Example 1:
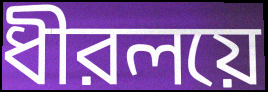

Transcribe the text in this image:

ধীরলয়ে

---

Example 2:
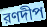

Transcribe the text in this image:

রণদীপ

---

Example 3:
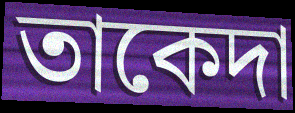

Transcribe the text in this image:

তাকেদা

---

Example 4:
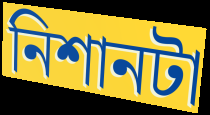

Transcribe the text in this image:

নিশানটা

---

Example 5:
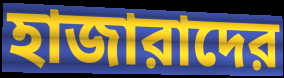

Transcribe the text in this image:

হাজারাদের